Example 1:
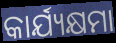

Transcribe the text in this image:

କାର୍ଯ୍ୟକ୍ଷମା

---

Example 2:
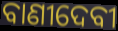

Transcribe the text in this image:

ବାଣୀଦେବୀ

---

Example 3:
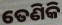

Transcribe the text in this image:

ତେଣିକି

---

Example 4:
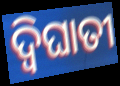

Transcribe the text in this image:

ଦ୍ବିଘାତୀ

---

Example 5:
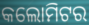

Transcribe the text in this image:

କଲୋମିଟର